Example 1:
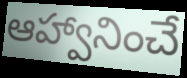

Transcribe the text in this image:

ఆహ్వానించే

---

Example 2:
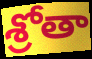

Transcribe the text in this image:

శ్రోతా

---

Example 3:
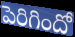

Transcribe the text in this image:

పెరిగిందో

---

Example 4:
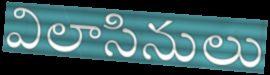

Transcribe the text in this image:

విలాసినులు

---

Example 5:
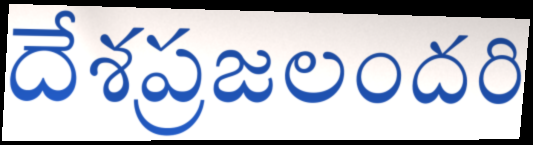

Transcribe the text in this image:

దేశప్రజలందరి